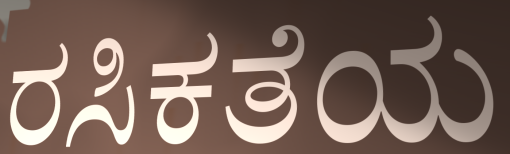
ರಸಿಕತೆಯ